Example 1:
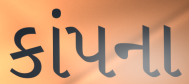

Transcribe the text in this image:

કાંપના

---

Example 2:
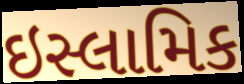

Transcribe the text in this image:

ઇસ્લામિક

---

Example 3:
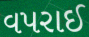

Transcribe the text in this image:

વપરાઈ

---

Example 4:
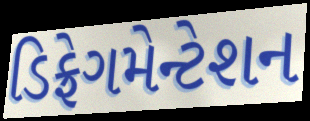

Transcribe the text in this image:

ડિફ્રેગમેન્ટેશન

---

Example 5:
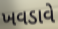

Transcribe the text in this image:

ખવડાવે